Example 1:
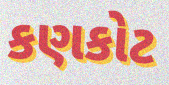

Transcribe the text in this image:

કણકોટ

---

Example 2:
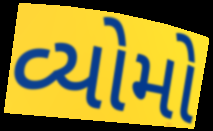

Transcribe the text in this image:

વ્યોમો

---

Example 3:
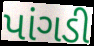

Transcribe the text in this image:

પાંગડી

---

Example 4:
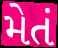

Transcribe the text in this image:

મેતં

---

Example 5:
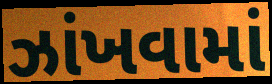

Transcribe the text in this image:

ઝાંખવામાં